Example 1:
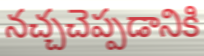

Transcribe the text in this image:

నచ్చచెప్పడానికి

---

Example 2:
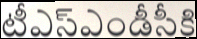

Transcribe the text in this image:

టీఎస్ఎండీసీకి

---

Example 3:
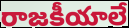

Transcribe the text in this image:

రాజకీయాలే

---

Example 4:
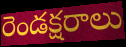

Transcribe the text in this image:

రెండక్షరాలు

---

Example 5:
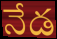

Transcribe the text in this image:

నేడ